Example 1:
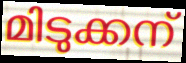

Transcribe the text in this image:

മിടുക്കന്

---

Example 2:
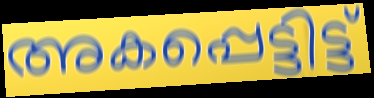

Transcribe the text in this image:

അകപ്പെട്ടിട്ട്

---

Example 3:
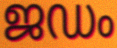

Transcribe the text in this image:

ജഡം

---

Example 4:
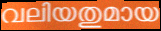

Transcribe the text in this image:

വലിയതുമായ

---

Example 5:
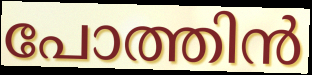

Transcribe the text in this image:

പോത്തിൻ